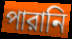
পারানি